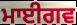
ਮਾਈਗਵ